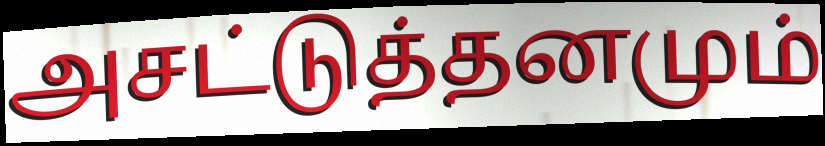
அசட்டுத்தனமும்